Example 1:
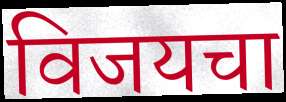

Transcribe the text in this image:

विजयचा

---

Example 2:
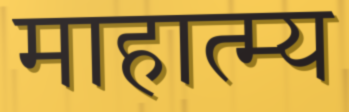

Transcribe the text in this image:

माहात्म्य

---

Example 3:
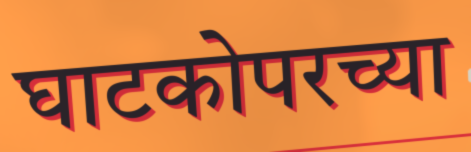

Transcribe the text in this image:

घाटकोपरच्या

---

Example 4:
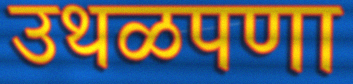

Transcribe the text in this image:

उथळपणा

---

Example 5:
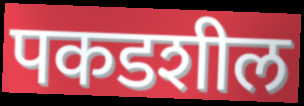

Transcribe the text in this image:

पकडशील